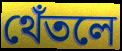
থেঁতলে